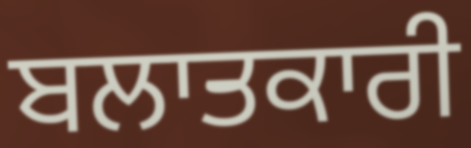
ਬਲਾਤਕਾਰੀ